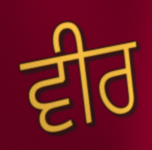
ਵੀਰ